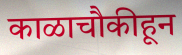
काळाचौकीहून